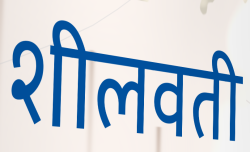
शीलवती